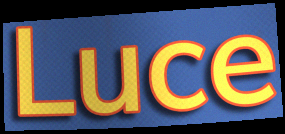
Luce